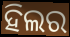
ହିଲର